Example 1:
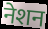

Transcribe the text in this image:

नेशन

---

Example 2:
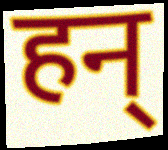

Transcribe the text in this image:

हन्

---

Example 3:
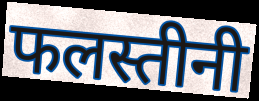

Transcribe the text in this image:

फलस्तीनी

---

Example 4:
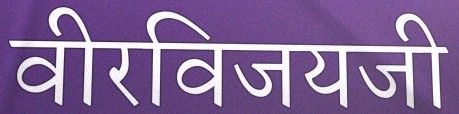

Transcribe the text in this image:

वीरविजयजी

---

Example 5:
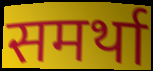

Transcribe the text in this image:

समर्था